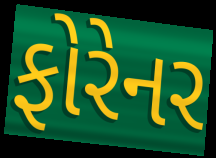
ફોરેનર